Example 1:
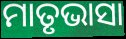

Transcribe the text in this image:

ମାତୃଭାସା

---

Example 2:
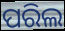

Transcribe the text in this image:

ପରିଲ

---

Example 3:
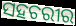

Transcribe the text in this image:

ସହଚରୀର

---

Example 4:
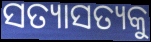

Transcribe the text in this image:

ସତ୍ୟାସତ୍ୟକୁ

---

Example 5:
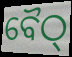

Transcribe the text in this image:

ବୈଠ୍